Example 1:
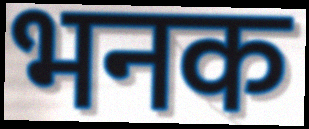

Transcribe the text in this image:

भनक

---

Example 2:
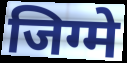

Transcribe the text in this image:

जिग्मे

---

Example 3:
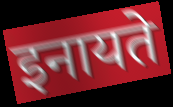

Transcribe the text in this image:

इनायते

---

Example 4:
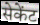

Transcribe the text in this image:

सेकेंट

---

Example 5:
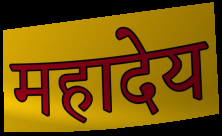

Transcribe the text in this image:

महादेय